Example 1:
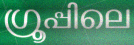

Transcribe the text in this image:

ഗ്രൂപ്പിലെ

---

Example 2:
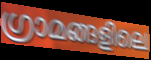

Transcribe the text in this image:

ഗ്രാമങ്ങളിലെ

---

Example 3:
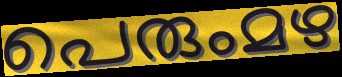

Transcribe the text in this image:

പെരുംമഴ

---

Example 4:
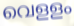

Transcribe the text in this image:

വെളളം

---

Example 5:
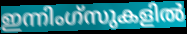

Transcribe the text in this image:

ഇന്നിംഗ്സുകളിൽ